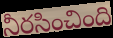
నీరసించింది